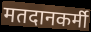
मतदानकर्मी